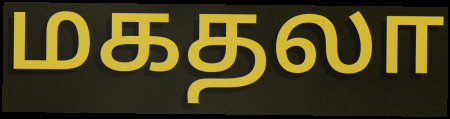
மகதலா